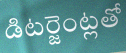
డిటర్జెంట్లతో